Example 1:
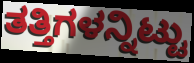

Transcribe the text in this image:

ತತ್ತಿಗಳನ್ನಿಟ್ಟು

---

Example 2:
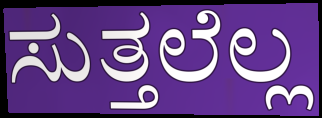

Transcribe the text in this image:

ಸುತ್ತಲೆಲ್ಲ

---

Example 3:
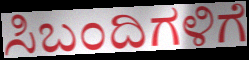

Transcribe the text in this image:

ಸಿಬಂದಿಗಳಿಗೆ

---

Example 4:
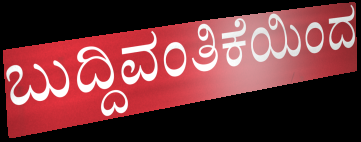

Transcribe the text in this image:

ಬುದ್ದಿವಂತಿಕೆಯಿಂದ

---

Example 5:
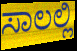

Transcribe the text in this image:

ಸಾಲಲ್ಲಿ